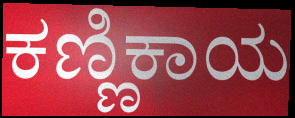
ಕಣ್ಣಿಕಾಯ